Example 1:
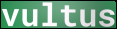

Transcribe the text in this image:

vultus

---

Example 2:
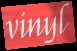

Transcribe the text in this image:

vinyl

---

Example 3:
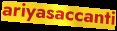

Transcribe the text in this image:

ariyasaccanti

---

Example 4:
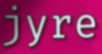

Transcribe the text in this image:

jyre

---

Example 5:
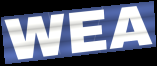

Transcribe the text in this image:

WEA